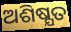
ଅଶିଷ୍ଯତ